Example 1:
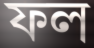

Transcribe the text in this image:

ফল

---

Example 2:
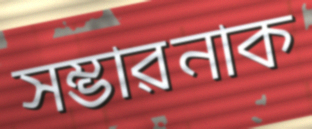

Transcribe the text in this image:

সম্ভাৱনাক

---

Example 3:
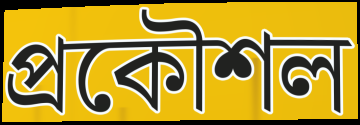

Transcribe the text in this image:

প্ৰকৌশল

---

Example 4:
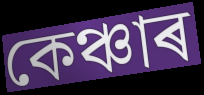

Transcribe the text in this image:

কেঞ্চাৰ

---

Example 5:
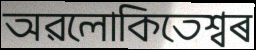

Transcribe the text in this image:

অৱলোকিতেশ্বৰ